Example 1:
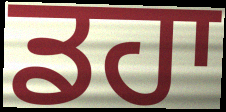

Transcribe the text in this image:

ਡਹਾ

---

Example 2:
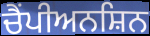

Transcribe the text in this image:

ਚੈਂਪੀਅਨਸ਼ਿਨ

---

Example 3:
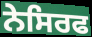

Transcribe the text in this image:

ਨੇਸਿਰਫ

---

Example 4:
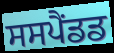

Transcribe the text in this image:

ਸਸਪੈਂਡਡ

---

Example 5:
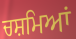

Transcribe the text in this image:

ਚਸ਼ਮਿਆਂ